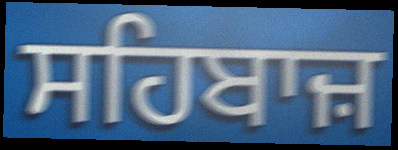
ਸਹਿਬਾਜ਼